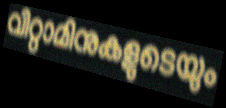
വിറ്റാമിനുകളുടെയും